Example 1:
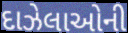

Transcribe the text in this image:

દાઝેલાઓની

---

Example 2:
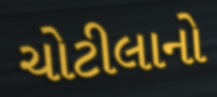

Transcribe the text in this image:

ચોટીલાનો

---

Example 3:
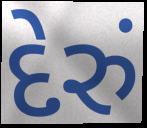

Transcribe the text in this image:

દેરું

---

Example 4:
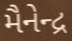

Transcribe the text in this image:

મૈનેન્દ્ર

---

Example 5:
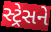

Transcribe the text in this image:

સ્ટ્રેસને